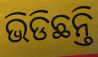
ଭିଡିଛନ୍ତି